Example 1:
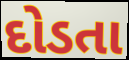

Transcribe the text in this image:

દોડતા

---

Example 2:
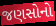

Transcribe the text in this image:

જણસોનો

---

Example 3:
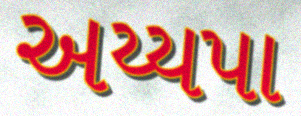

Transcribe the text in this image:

અય્યપા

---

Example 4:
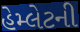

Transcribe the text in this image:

હેમ્લેટની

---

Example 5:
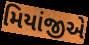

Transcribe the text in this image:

મિયાંજીએ